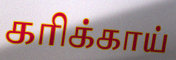
கரிக்காய்